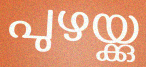
പുഴയ്ക്കു